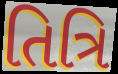
તિત્રિ